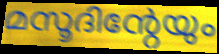
മസൂദിന്റേയും